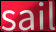
sail